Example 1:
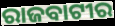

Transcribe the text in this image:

ରାଜବାଟୀର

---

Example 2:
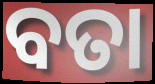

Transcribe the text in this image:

ବତା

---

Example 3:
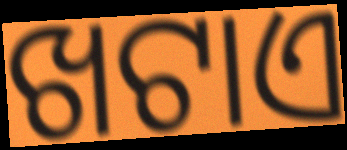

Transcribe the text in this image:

ଖଟାଏ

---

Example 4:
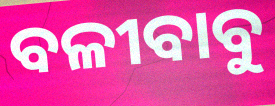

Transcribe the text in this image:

ବଳୀବାବୁ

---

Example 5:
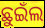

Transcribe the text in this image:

ଛୁଇଁଲ